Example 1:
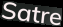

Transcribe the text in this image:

Satre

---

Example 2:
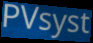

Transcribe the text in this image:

PVsyst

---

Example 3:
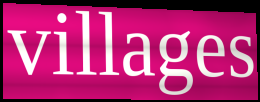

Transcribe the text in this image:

villages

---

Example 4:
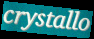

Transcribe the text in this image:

crystallo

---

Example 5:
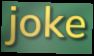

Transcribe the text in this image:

joke